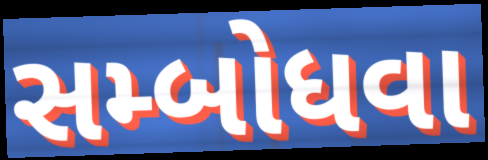
સમ્બોધવા